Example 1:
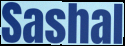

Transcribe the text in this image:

Sashal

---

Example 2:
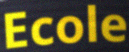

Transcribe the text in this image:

Ecole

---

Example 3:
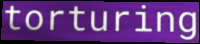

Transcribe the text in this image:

torturing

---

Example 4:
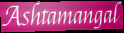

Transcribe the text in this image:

Ashtamangal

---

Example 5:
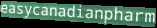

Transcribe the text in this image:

easycanadianpharm